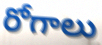
రోగాలు